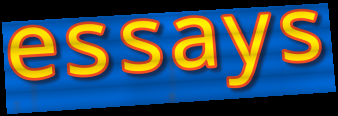
essays